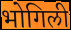
भोगिली